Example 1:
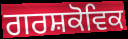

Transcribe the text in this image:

ਗਰਸ਼ਕੋਵਿਕ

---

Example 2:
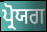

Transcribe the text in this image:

ਪ੍ਰੋਯਗ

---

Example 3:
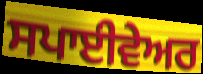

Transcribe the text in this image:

ਸਪਾਈਵੇਅਰ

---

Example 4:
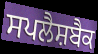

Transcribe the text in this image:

ਸਪਲੈਸ਼ਬੈਕ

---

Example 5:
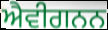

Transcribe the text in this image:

ਐਵੀਗਨਨ